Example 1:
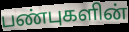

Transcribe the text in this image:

பண்புகளின்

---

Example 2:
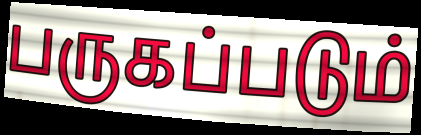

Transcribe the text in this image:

பருகப்படும்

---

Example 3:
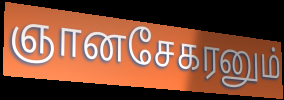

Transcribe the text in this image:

ஞானசேகரனும்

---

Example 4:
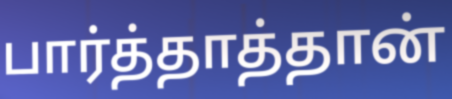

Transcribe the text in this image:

பார்த்தாத்தான்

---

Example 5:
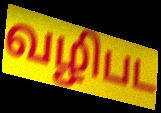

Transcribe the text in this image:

வழிபட